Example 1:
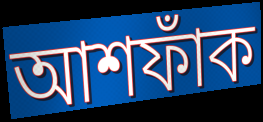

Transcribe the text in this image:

আশফাঁক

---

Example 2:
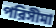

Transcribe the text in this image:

পরিসীমা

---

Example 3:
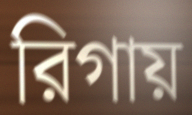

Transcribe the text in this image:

রিগায়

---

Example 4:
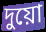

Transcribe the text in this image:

দুয়ো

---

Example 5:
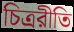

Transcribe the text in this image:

চিত্ররীতি